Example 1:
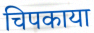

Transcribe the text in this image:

चिपकाया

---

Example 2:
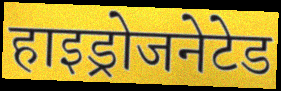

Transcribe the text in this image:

हाइड्रोजनेटेड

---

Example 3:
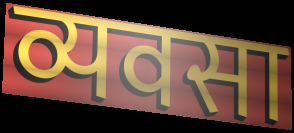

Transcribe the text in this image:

व्यवसा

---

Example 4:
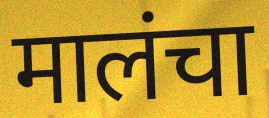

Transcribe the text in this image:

मालंचा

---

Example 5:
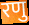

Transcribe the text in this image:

रणु